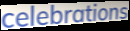
celebrations